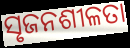
ସୃଜନଶୀଳତା